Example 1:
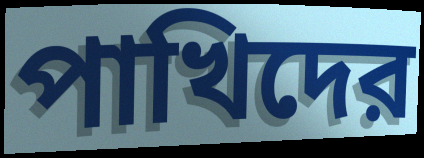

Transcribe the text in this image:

পাখিদের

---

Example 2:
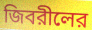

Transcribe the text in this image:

জিবরীলের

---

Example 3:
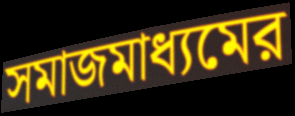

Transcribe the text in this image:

সমাজমাধ্যমের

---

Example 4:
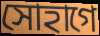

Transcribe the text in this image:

সোহাগে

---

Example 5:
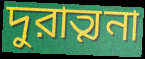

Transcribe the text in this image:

দুরাত্মনা